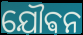
ଯୌଵନ